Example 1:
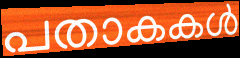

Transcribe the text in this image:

പതാകകൾ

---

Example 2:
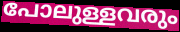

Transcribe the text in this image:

പോലുള്ളവരും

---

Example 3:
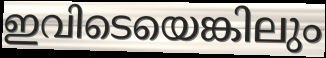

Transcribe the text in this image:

ഇവിടെയെങ്കിലും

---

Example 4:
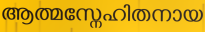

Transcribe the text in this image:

ആത്മസ്നേഹിതനായ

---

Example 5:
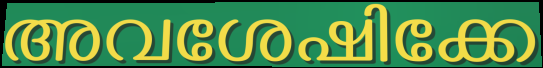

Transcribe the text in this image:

അവശേഷിക്കേ